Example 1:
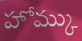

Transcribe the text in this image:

హోమ్కు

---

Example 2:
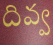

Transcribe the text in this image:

దివ్వ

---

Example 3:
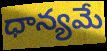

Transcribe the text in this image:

ధాన్యమే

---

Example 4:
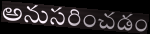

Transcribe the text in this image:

అనుసరించడం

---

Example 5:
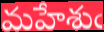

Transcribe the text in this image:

మహేశుఁ